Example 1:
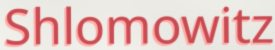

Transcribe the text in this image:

Shlomowitz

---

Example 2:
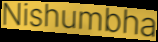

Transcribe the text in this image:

Nishumbha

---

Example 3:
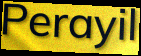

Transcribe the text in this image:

Perayil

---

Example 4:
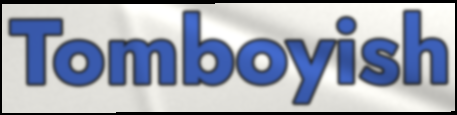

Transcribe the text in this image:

Tomboyish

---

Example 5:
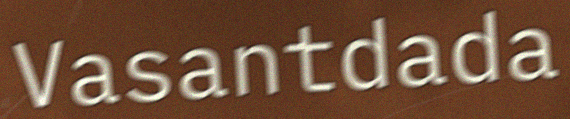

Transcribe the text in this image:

Vasantdada